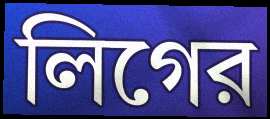
লিগের